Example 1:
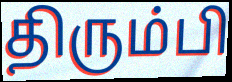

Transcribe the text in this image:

திரும்பி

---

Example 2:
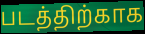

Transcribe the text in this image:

படத்திற்காக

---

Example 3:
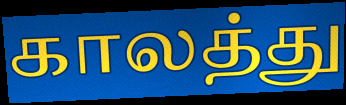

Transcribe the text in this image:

காலத்து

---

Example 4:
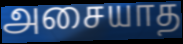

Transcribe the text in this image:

அசையாத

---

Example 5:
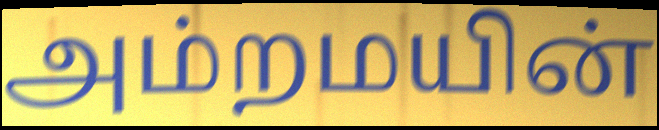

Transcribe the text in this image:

அம்றமயின்